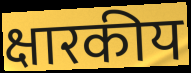
क्षारकीय